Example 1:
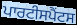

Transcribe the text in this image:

ਪਾਰਟੀਸਪੈਂਟਸ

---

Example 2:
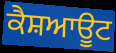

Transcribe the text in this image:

ਕੈਸ਼ਆਊਟ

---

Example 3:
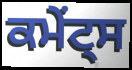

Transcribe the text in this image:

ਕਮੇਂਟ੍ਸ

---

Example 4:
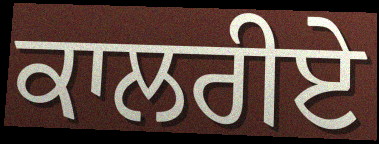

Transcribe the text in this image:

ਕਾਲਰੀਏ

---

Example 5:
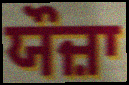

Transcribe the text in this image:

ਯੌਜ਼ਾ